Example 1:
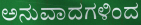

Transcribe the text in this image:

ಅನುವಾದಗಳಿಂದ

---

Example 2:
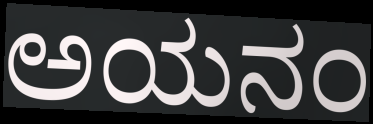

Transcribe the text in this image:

ಅಯನಂ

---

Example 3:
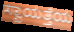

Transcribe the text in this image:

ಸ್ವಾಯತ್ತೆಯ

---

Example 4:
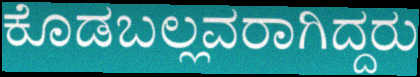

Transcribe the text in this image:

ಕೊಡಬಲ್ಲವರಾಗಿದ್ದರು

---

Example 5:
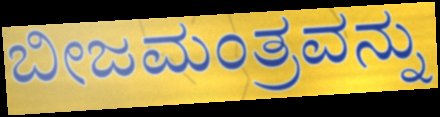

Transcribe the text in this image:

ಬೀಜಮಂತ್ರವನ್ನು